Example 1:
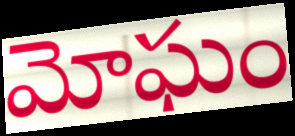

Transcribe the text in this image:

మోఘం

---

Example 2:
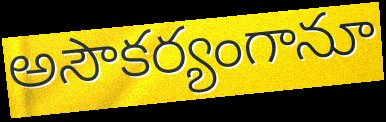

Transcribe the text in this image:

అసౌకర్యంగానూ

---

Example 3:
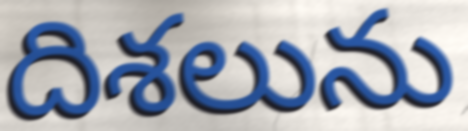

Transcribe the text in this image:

దిశలును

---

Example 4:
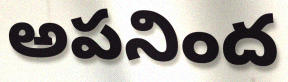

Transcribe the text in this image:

అపనింద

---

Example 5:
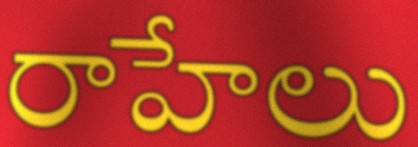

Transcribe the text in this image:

రాహేలు